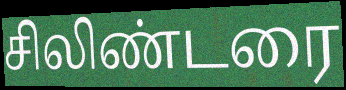
சிலிண்டரை